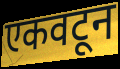
एकवटून